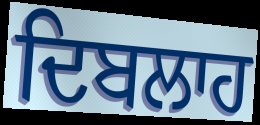
ਦਿਬਲਾਹ